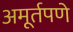
अमूर्तपणे